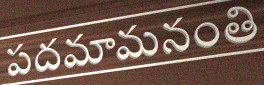
పదమామనంతి